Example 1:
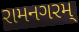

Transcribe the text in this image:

રામનગરમ્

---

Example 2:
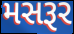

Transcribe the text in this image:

મસરૂર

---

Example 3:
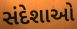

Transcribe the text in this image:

સંદેશાઓ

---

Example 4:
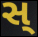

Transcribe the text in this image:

સ્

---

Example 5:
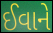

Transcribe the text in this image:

ઈવાને